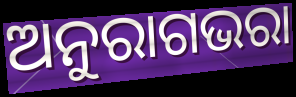
ଅନୁରାଗଭରା